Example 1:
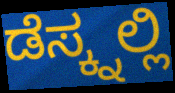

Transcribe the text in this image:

ಡೆಸ್ಕ್ನಲ್ಲಿ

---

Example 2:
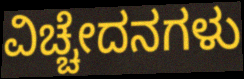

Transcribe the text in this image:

ವಿಚ್ಚೇದನಗಳು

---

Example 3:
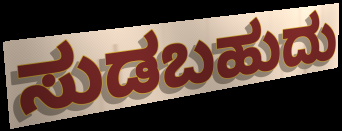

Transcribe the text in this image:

ಸುಡಬಹುದು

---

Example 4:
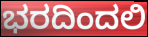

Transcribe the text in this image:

ಭರದಿಂದಲಿ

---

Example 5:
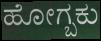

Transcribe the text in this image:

ಹೋಗ್ಬಕು